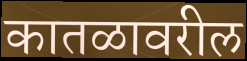
कातळावरील